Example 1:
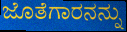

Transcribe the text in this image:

ಜೊತೆಗಾರನನ್ನು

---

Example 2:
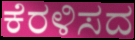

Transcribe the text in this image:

ಕೆರಳಿಸದ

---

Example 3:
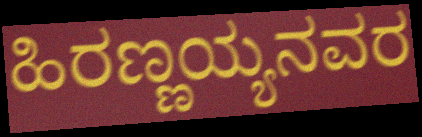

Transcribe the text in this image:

ಹಿರಣ್ಣಯ್ಯನವರ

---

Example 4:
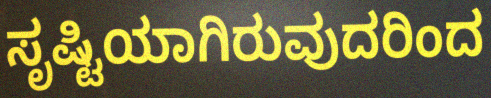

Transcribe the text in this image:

ಸೃಷ್ಟಿಯಾಗಿರುವುದರಿಂದ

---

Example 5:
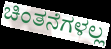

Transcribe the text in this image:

ಚಿಂತನೆಗಳಲ್ಲ